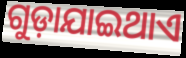
ଗୁଡ଼ାଯାଇଥାଏ